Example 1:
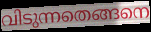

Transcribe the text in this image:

വിടുന്നതെങ്ങനെ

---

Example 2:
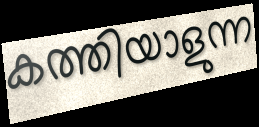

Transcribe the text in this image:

കത്തിയാളുന്ന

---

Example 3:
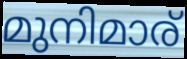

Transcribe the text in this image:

മുനിമാര്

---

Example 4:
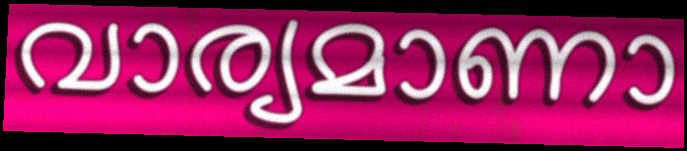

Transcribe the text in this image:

വാര്യമാണാ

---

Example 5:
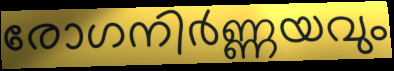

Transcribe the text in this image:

രോഗനിർണ്ണയവും